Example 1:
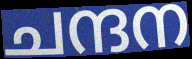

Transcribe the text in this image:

ചന്ദന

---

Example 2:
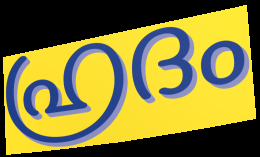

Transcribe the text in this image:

ഹ്രദം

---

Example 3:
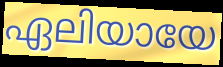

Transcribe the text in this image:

ഏലിയായേ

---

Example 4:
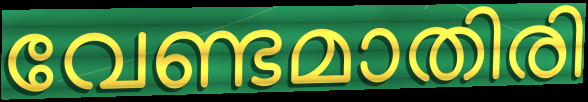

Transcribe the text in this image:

വേണ്ടമാതിരി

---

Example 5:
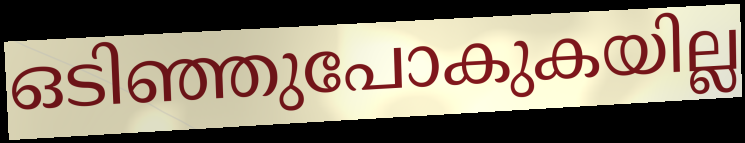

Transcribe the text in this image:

ഒടിഞ്ഞുപോകുകയില്ല